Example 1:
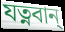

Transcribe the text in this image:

যত্নবান্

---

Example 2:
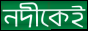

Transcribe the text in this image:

নদীকেই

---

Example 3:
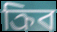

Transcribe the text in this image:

ক্রিব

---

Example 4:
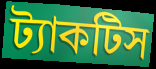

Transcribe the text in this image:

ট্যাকটিস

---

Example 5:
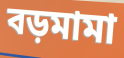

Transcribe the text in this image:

বড়মামা